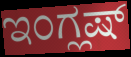
ಇಂಗ್ಲಷ್